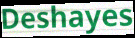
Deshayes